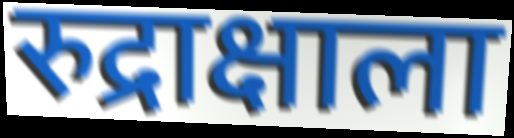
रुद्राक्षाला